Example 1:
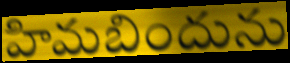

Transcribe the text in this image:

హిమబిందును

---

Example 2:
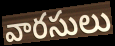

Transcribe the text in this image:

వారసులు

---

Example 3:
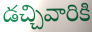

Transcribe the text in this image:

డచ్చివారికి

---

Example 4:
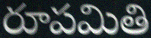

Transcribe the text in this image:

రూపమితి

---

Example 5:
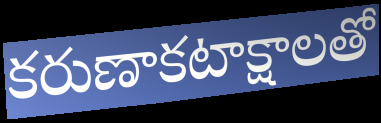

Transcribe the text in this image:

కరుణాకటాక్షాలతో